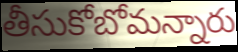
తీసుకోబోమన్నారు